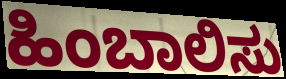
ಹಿಂಬಾಲಿಸು